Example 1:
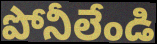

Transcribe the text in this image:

పోనీలేండి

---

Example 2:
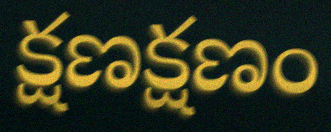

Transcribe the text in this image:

క్షణక్షణం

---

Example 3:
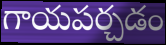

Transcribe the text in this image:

గాయపర్చడం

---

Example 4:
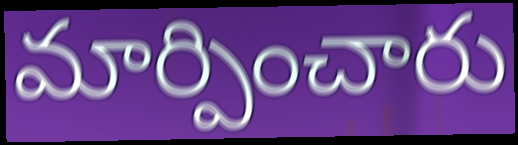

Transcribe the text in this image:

మార్పించారు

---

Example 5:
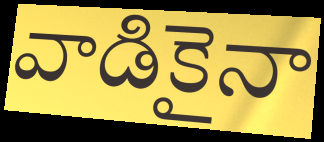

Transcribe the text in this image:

వాడికైనా